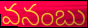
వనంబు